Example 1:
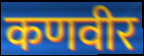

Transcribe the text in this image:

कणवीर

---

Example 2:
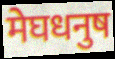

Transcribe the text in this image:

मेघधनुष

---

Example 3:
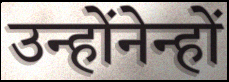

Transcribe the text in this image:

उन्होंनेन्हों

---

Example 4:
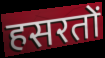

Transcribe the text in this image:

हसरतों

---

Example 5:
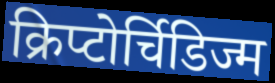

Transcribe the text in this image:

क्रिप्टोर्चिडिज्म